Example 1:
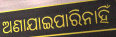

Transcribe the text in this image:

ଅଣାଯାଇପାରିନାହିଁ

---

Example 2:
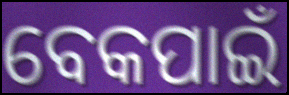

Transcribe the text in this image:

ବେକପାଇଁ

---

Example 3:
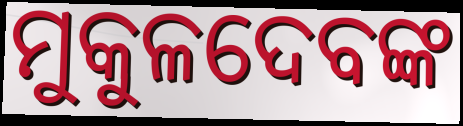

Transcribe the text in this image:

ମୁକୁଳଦେବଙ୍କ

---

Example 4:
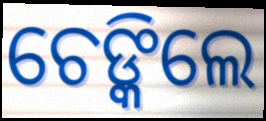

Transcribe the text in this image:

ଚେଙ୍କିଲେ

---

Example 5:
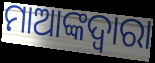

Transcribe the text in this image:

ମାଆଙ୍କଦ୍ଵାରା